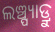
ଲଞ୍ଚ୍ପ୍ୟାଡ୍ରୁ